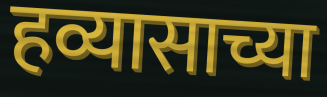
हव्यासाच्या